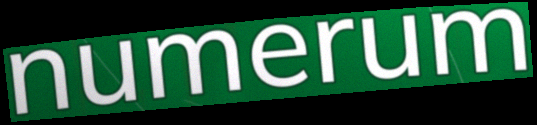
numerum